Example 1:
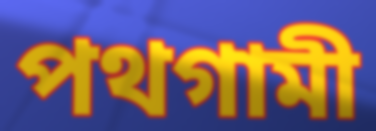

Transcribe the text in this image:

পথগামী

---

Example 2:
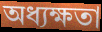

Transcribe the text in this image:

অধ্যক্ষতা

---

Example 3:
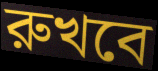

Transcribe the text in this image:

রুখবে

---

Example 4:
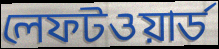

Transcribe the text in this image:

লেফটওয়ার্ড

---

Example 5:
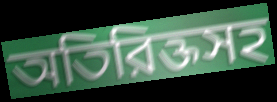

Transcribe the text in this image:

অতিরিক্তসহ